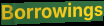
Borrowings